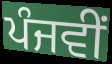
ਪੰਜਵੀਂ